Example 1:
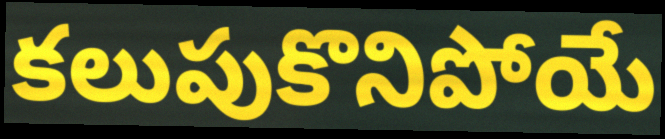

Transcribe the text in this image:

కలుపుకొనిపోయే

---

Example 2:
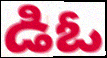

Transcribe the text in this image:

డిఓ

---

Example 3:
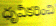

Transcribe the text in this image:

ధృవీకరించి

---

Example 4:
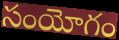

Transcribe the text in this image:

సంయోగం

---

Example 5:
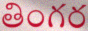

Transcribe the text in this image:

తింగర